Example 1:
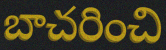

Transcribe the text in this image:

బాచరించి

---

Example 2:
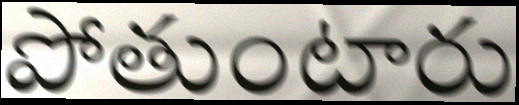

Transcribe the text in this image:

పోతుంటారు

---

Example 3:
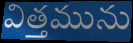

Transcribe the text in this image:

విత్తమును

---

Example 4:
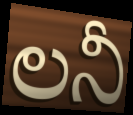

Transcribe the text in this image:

లనీ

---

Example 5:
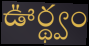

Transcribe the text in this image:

ఊర్థ్వం